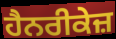
ਹੈਨਰੀਕੇਜ਼